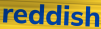
reddish